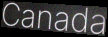
Canada